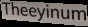
Theeyinum